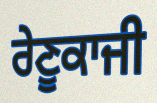
ਰੇਣੂਕਾਜੀ